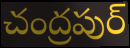
చంద్రపుర్